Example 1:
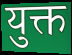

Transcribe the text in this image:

युक्त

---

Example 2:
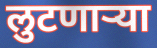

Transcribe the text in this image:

लुटणाऱ्या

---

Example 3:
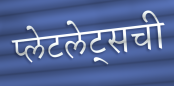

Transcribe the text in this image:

प्लेटलेट्‌सची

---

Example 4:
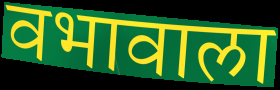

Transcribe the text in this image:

वभावाला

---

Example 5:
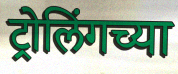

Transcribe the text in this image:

ट्रोलिंगच्या